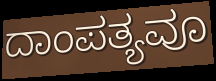
ದಾಂಪತ್ಯವೂ